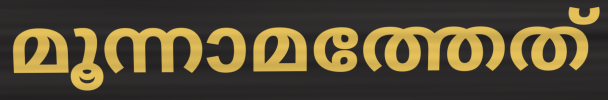
മൂന്നാമത്തേത്